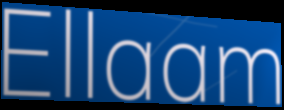
Ellaam